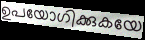
ഉപയോഗിക്കുകയേ